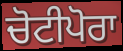
ਚੋਟੀਪੋਰਾ